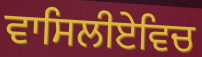
ਵਾਸਿਲੀਏਵਿਚ